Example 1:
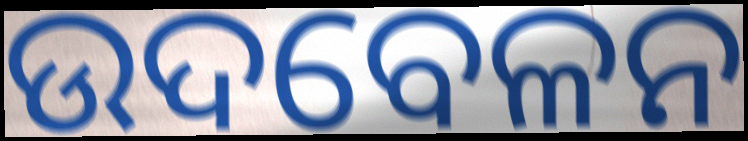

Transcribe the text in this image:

ଉଦବେଳନ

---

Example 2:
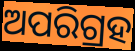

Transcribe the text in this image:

ଅପରିଗ୍ରହ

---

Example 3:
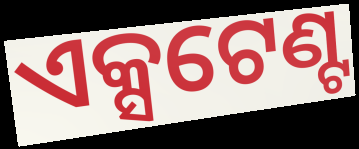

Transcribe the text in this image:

ଏକ୍ସଟେଣ୍ଟ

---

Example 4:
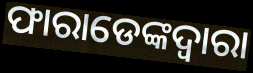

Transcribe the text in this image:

ଫାରାଡେଙ୍କଦ୍ୱାରା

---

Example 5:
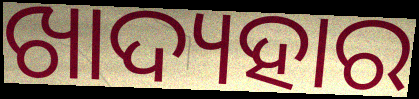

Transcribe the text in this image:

ଖାଦ୍ୟହାର